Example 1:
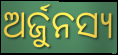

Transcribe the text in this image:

ଅର୍ଜୁନସ୍ୟ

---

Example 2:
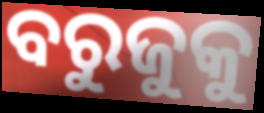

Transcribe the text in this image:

ବରୁଜୁକୁ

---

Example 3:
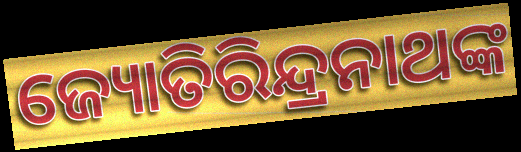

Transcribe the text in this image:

ଜ୍ୟୋତିରିନ୍ଦ୍ରନାଥଙ୍କ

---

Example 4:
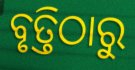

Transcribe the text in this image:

ବୃତ୍ତିଠାରୁ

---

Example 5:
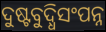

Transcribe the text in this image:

ଦୁଷ୍ଟବୁଦ୍ଧିସଂପନ୍ନ